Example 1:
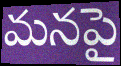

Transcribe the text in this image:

మనపై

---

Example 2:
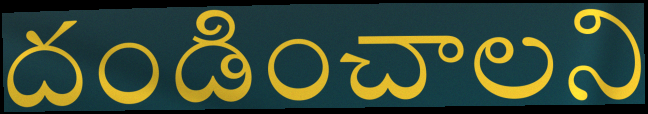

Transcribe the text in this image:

దండించాలని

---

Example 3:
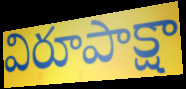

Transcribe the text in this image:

విరూపాక్షా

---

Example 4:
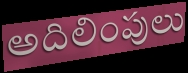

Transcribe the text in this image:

అదిలింపులు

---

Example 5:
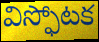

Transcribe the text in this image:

విస్ఫోటక